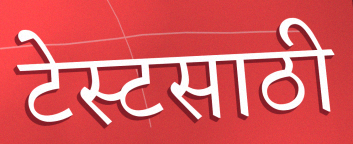
टेस्टसाठी